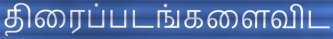
திரைப்படங்களைவிட